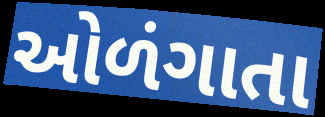
ઓળંગાતા